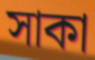
সাকা